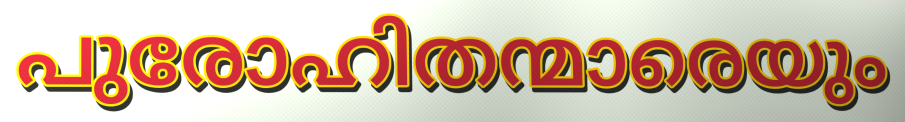
പുരോഹിതന്മാരെയും